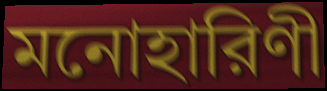
মনোহারিণী